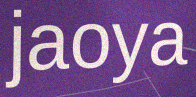
jaoya